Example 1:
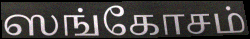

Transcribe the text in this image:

ஸங்கோசம்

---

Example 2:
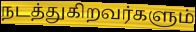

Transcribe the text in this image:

நடத்துகிறவர்களும்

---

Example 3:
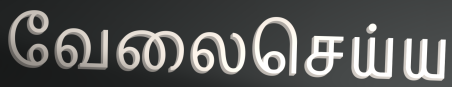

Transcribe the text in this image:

வேலைசெய்ய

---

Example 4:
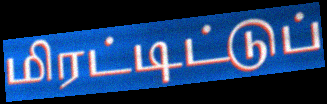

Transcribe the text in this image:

மிரட்டிட்டுப்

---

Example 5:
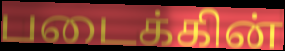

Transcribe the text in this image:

படைக்கின்